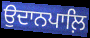
ਉਦਾਨਪਾਲ਼ਿ